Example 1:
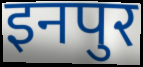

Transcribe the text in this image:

इनपुर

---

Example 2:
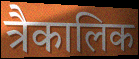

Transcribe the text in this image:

त्रैकालिक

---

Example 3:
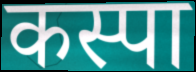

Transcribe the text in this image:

कस्पा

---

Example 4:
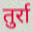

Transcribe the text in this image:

तुर्रा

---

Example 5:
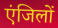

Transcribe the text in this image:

एंजिलों